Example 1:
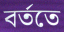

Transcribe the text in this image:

বর্ততে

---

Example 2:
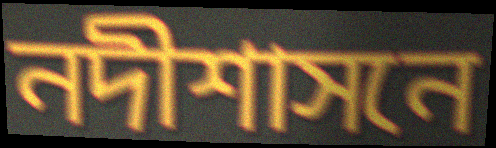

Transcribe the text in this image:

নদীশাসনে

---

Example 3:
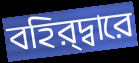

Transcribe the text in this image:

বহির্‌দ্বারে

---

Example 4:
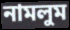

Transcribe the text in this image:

নামলুম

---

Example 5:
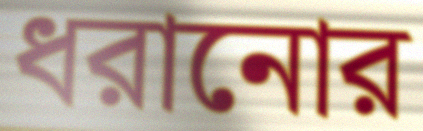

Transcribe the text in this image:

ধরানোর